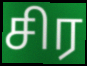
சிர